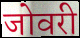
जोवरी